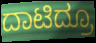
ದಾಟಿದ್ರೂ